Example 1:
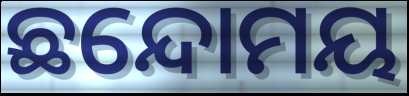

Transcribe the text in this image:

ଛନ୍ଦୋମୟ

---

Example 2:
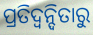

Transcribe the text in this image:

ପ୍ରତିଦ୍ୱନ୍ଦିତାରୁ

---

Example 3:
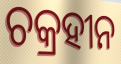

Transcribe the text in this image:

ଚକ୍ରହୀନ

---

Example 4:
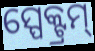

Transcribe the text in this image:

ସ୍ପେକ୍ଟ୍ରମ୍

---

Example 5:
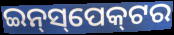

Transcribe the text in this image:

ଇନ୍‌ସ୍‌ପେକ୍‌ଟର